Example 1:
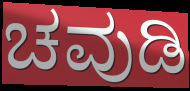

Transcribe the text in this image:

ಚವುಡಿ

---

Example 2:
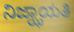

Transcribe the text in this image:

ನಿಜ್ಝಾಯತಿ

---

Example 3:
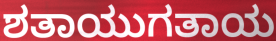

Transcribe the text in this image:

ಶತಾಯುಗತಾಯ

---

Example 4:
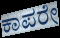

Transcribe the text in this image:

ಕಾಪರೇ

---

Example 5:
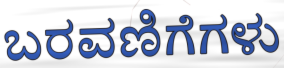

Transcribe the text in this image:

ಬರವಣಿಗೆಗಳು